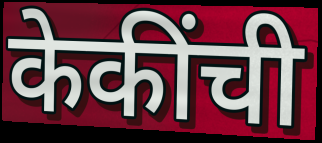
केकींची